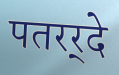
पतरर्दे